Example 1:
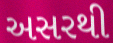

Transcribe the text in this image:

અસરથી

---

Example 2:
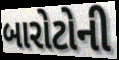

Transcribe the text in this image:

બારોટોની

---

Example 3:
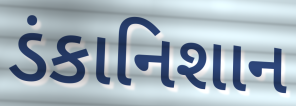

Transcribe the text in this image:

ડંકાનિશાન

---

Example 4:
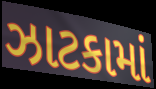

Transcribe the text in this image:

ઝાટકામાં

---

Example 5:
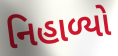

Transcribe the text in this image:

નિહાળ્યો